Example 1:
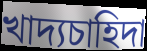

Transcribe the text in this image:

খাদ্যচাহিদা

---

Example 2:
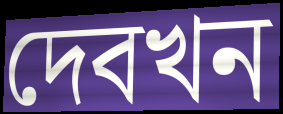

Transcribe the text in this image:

দেবখন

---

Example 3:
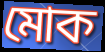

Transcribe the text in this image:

মোক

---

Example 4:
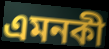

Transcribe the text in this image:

এমনকী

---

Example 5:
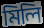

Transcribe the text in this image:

মিলি